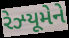
રેઝ્યૂમેને